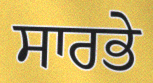
ਸਾਰਭੇ